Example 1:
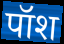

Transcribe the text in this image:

पॉश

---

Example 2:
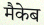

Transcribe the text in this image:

मैकेब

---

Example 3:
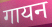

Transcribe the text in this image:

गायन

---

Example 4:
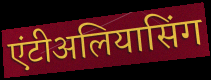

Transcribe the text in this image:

एंटीअलियासिंग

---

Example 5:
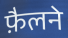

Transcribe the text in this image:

फ़ैलने